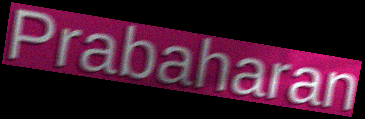
Prabaharan